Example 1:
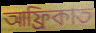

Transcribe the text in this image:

আফ্ৰিকাত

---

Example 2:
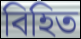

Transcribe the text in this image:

বিহিত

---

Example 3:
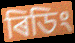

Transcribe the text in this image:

ৰিডিং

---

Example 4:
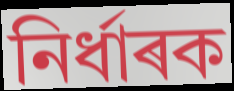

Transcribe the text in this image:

নিৰ্ধাৰক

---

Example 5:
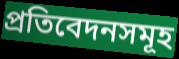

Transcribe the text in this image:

প্ৰতিবেদনসমূহ